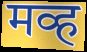
मव्ह